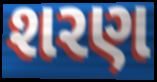
શરણ